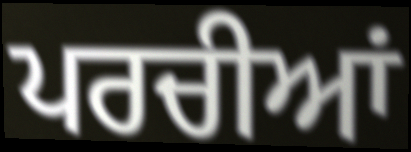
ਪਰਚੀਆਂ